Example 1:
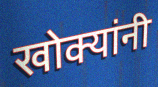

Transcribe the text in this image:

खोक्यांनी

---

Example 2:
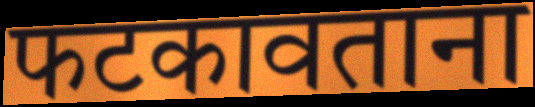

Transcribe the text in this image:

फटकावताना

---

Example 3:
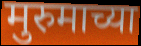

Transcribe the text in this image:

मुरुमाच्या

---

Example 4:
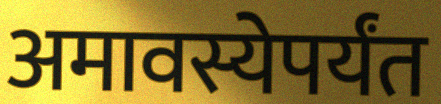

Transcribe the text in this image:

अमावस्येपर्यंत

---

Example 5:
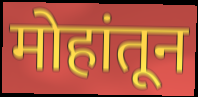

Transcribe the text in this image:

मोहांतून